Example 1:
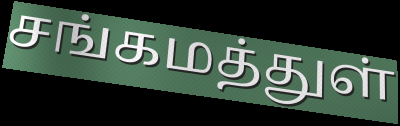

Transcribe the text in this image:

சங்கமத்துள்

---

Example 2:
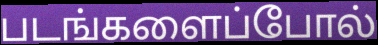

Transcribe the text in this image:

படங்களைப்போல்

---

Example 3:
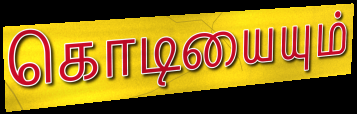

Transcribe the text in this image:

கொடியையும்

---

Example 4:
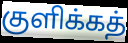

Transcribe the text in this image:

குளிக்கத்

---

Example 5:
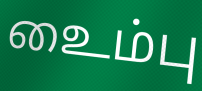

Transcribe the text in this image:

உைம்பு